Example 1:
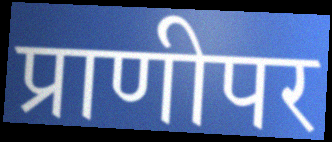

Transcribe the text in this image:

प्राणीपर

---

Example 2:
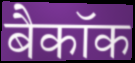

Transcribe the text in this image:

बैकॉक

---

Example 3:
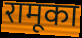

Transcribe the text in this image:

रामूका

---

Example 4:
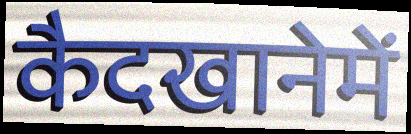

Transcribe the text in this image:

कैदखानेमें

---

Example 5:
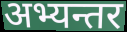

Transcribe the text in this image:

अभ्यन्तर